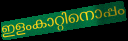
ഇളംകാറ്റിനൊപ്പം